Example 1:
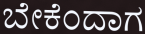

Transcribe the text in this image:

ಬೇಕೆಂದಾಗ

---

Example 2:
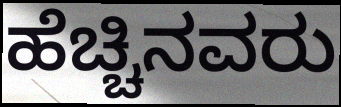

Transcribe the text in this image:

ಹೆಚ್ಚಿನವರು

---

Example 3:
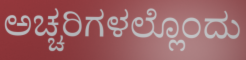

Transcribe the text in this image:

ಅಚ್ಚರಿಗಳಲ್ಲೊಂದು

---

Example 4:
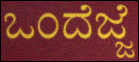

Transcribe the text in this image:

ಒಂದೆಜ್ಜೆ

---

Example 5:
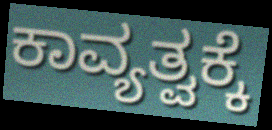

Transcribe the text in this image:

ಕಾವ್ಯತ್ವಕ್ಕೆ